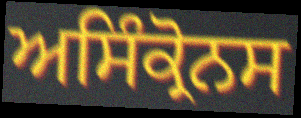
ਅਸਿੰਕ੍ਰੋਨਸ